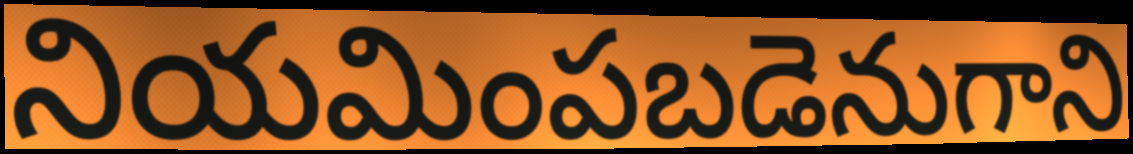
నియమింపబడెనుగాని